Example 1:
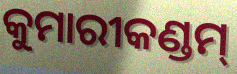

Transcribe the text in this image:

କୁମାରୀକଣ୍ଡମ୍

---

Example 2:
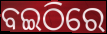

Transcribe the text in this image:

ବଇଠିରେ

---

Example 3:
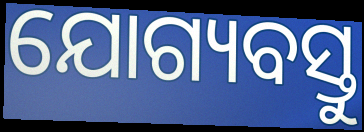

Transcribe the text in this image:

ଯୋଗ୍ୟବସ୍ତୁ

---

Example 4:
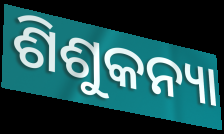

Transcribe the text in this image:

ଶିଶୁକନ୍ୟା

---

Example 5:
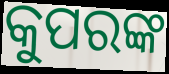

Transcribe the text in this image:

କୁପରଙ୍କ